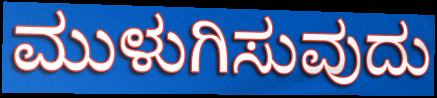
ಮುಳುಗಿಸುವುದು